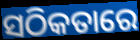
ସଠିକତାରେ